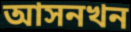
আসনখন